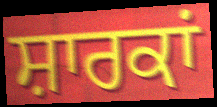
ਸ਼ਾਰਕਾਂ